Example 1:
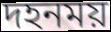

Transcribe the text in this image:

দহনময়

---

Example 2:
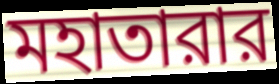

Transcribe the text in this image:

মহাতারার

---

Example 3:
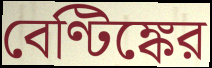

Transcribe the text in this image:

বেণ্টিঙ্কের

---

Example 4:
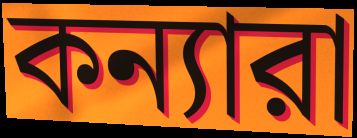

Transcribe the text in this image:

কন্যারা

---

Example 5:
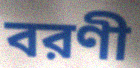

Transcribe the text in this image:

বরণী